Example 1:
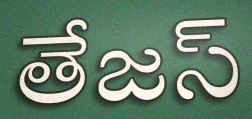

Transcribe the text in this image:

తేజస్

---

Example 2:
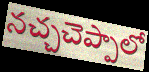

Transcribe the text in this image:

నచ్చచెప్పాలో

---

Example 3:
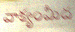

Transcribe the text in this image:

వాక్యంమీద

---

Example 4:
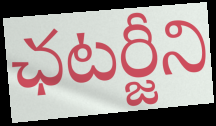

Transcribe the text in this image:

ఛటర్జీని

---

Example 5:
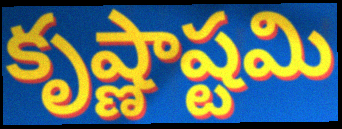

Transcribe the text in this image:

కృష్ణాష్టమి